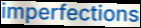
imperfections